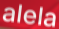
alela